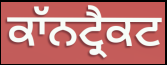
ਕਾੱਨਟ੍ਰੈਕਟ